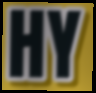
HY